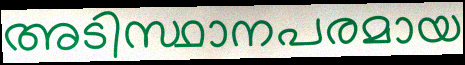
അടിസ്ഥാനപരമായ